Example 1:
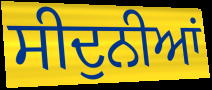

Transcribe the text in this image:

ਸੀਦੁਨੀਆਂ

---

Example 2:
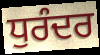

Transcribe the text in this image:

ਧੁਰੰਦਰ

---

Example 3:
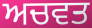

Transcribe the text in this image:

ਅਚਵਤ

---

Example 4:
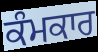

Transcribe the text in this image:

ਕੰਮਕਾਰ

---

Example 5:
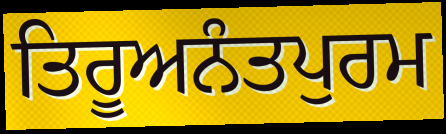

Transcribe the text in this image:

ਤਿਰੂਅਨੰਤਪੁਰਮ